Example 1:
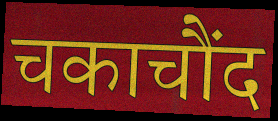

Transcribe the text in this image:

चकाचौंद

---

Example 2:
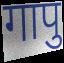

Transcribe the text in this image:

गापु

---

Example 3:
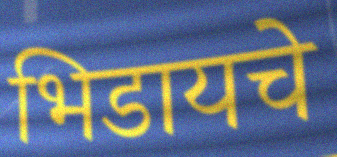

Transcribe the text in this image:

भिडायचे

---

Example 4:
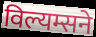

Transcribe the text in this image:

विल्यम्सने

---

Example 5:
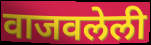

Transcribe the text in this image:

वाजवलेली